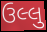
ઉલ્લુ